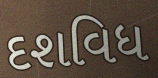
દશવિધ